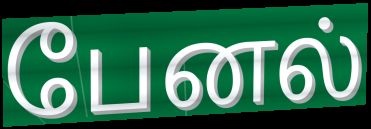
பேனல்